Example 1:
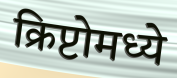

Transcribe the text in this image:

क्रिप्टोमध्ये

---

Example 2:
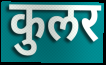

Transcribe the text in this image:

कुलर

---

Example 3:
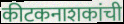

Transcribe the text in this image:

कीटकनाशकांची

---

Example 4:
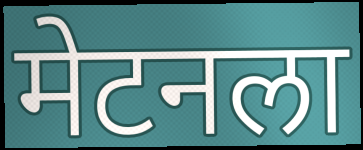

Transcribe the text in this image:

मेटनला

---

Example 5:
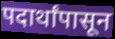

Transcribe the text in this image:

पदार्थांपासून